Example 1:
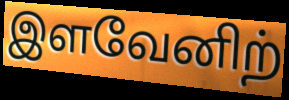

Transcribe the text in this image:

இளவேனிற்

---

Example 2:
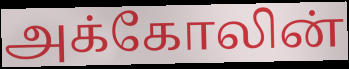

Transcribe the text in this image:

அக்கோலின்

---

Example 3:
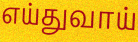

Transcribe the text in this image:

எய்துவாய்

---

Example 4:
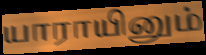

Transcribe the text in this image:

யாராயினும்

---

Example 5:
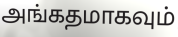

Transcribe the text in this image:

அங்கதமாகவும்